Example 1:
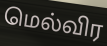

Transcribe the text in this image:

மெல்விர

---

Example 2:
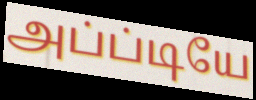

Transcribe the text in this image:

அப்ப்டியே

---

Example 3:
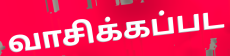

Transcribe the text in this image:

வாசிக்கப்பட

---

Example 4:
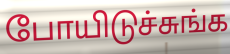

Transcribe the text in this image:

போயிடுச்சுங்க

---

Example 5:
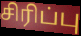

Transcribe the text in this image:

சிரிப்பு